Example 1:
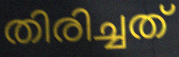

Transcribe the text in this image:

തിരിച്ചത്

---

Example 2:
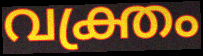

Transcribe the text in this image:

വക്ത്രം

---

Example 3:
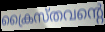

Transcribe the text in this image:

ക്രൈസ്തവന്റെ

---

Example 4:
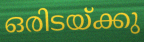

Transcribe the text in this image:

ഒരിടയ്ക്കു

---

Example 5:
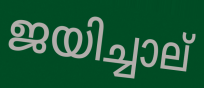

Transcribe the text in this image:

ജയിച്ചാല്